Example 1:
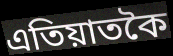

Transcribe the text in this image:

এতিয়াতকৈ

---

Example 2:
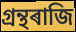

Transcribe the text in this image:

গ্ৰন্থৰাজি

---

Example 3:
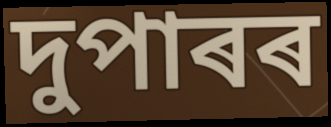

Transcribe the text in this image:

দুপাৰৰ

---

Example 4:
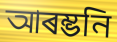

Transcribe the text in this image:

আৰম্ভনি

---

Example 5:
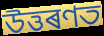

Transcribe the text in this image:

উত্তৰণত